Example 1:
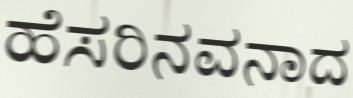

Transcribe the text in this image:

ಹೆಸರಿನವನಾದ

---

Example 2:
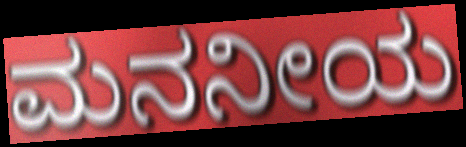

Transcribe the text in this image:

ಮನನೀಯ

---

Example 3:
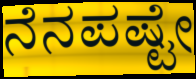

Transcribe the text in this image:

ನೆನಪಷ್ಟೇ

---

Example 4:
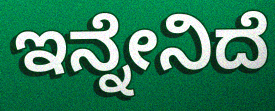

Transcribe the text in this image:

ಇನ್ನೇನಿದೆ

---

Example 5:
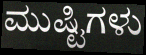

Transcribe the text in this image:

ಮುಷ್ಟಿಗಳು